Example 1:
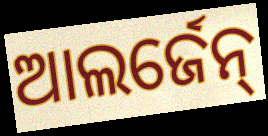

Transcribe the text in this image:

ଆଲର୍ଜେନ୍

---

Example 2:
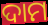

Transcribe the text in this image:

ଦାମ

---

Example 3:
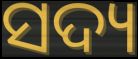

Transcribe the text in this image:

ସଦ୍ୟ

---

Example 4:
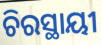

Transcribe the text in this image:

ଚିରସ୍ଥାୟୀ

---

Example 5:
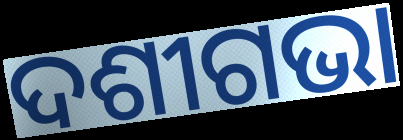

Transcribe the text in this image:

ଦଶୀଗଭା